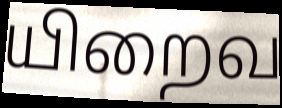
யிறைவ